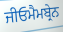
ਜੀਓਮੈਮਬ੍ਰੇਨ